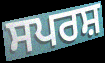
ਸਪਰਸ਼